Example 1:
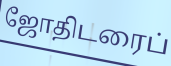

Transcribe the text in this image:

ஜோதிடரைப்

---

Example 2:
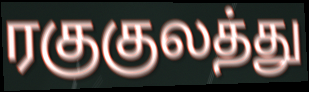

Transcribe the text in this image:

ரகுகுலத்து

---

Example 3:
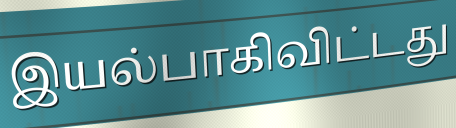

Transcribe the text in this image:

இயல்பாகிவிட்டது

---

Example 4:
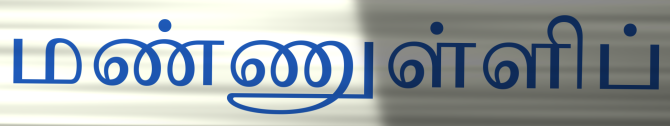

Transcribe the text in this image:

மண்ணுள்ளிப்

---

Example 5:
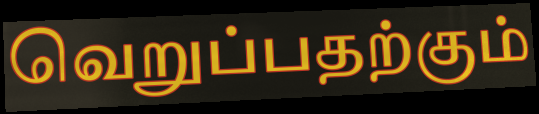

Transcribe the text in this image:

வெறுப்பதற்கும்